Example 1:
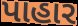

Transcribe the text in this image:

પાહાર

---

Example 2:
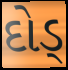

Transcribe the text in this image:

દોડ્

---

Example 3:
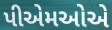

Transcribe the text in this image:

પીએમઓએ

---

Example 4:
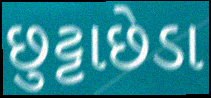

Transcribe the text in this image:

છુટ્ટાછેડા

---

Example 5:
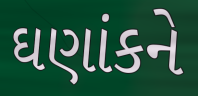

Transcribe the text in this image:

ઘણાંકને